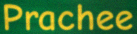
Prachee